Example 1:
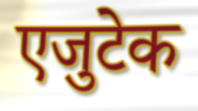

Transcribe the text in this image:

एजुटेक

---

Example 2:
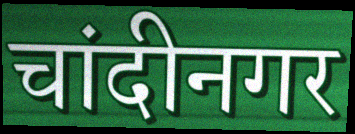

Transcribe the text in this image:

चांदीनगर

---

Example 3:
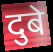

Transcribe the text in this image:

दुबे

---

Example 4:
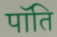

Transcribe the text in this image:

पॉति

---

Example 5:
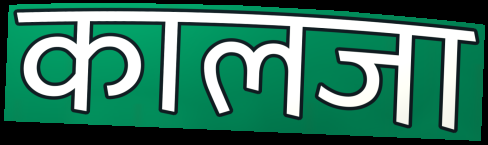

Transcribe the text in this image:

कालजा